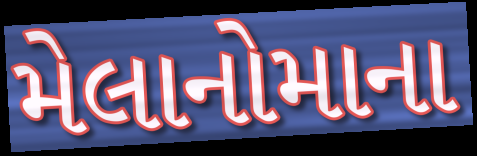
મેલાનોમાના